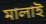
মালাই